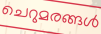
ചെറുമരങ്ങൾ